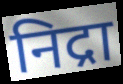
निद्रा